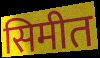
सिमीत